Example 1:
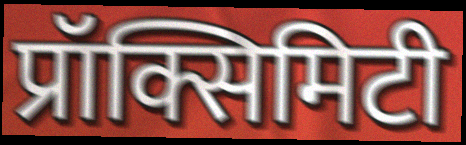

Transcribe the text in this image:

प्रॉक्सिमिटी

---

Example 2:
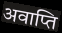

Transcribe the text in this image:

अवाप्ति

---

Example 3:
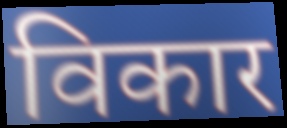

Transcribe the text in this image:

विकार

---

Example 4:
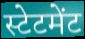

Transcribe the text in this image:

स्टेटमेंट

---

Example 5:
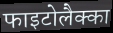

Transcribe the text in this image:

फाइटोलैक्का